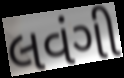
લવંગી